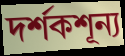
দর্শকশূন্য